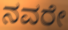
ನವರೇ